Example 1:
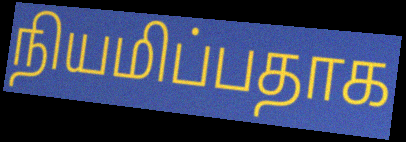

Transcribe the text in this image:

நியமிப்பதாக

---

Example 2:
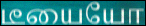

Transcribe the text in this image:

டீயையோ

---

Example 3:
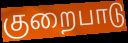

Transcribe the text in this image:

குறைபாடு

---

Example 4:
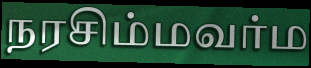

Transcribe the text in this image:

நரசிம்மவர்ம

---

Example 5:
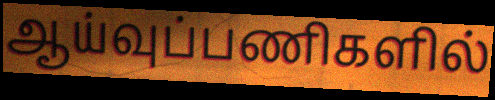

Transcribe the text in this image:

ஆய்வுப்பணிகளில்